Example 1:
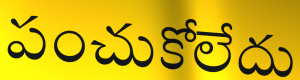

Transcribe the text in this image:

పంచుకోలేదు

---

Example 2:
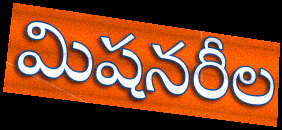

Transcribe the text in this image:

మిషనరీల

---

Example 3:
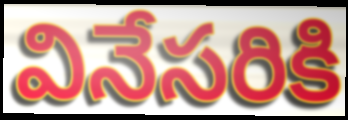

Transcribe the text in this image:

వినేసరికి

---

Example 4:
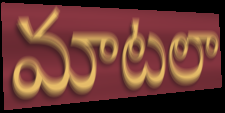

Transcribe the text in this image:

మాటలా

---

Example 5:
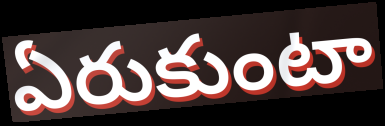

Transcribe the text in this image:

ఏరుకుంటా